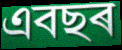
এবছৰ